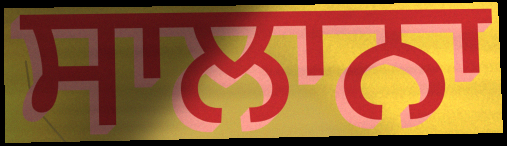
ਸਾਲਾਨਾ